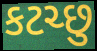
કટચ્છુ